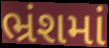
ભ્રંશમાં